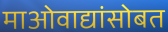
माओवाद्यांसोबत